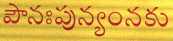
పౌనఃపున్యంనకు